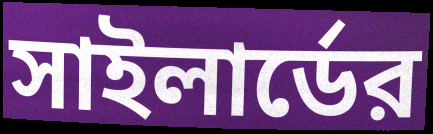
সাইলার্ডের